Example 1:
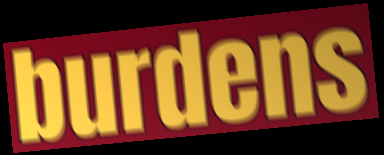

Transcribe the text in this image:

burdens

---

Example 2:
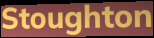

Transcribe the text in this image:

Stoughton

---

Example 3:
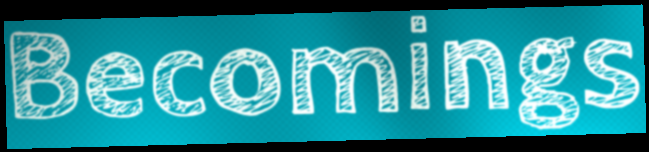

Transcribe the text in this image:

Becomings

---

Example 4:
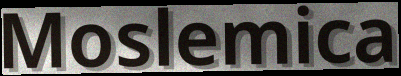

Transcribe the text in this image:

Moslemica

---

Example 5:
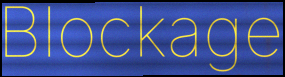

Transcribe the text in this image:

Blockage